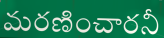
మరణించారనీ